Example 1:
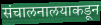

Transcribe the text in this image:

संचालनालयाकडून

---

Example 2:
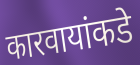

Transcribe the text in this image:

कारवायांकडे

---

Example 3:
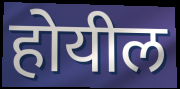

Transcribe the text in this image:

होयील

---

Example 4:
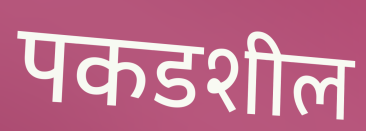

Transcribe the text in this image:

पकडशील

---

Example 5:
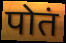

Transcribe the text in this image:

पोतं